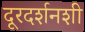
दूरदर्शनशी